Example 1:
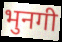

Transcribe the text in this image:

भुनगी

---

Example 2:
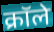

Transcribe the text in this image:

क्रॉले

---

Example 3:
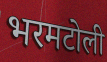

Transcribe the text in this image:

भरमटोली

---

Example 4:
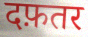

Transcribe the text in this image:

दफ़तर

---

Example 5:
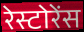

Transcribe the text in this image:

रेस्टोरेंस